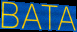
BATA